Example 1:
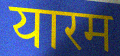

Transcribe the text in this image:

यारम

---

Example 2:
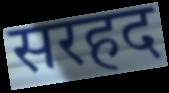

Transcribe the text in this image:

सरहद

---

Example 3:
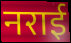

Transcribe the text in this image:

नराई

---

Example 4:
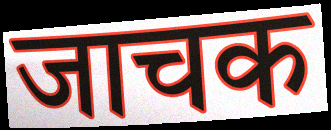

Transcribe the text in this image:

जाचक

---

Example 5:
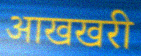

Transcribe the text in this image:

आखखरी